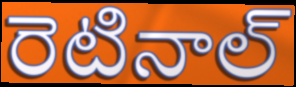
రెటినాల్